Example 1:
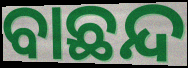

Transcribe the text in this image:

ବାଛନ୍ଦ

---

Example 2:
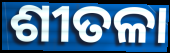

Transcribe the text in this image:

ଶୀତଳା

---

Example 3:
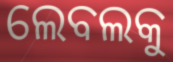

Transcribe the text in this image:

ଲେବଲକୁ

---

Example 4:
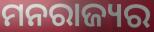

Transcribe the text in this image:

ମନରାଜ୍ୟର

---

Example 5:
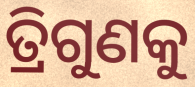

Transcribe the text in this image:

ତ୍ରିଗୁଣକୁ